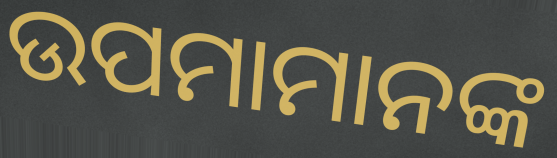
ଉପମାମାନଙ୍କ